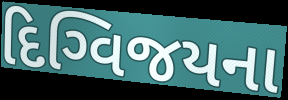
દિગ્વિજયના